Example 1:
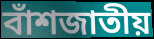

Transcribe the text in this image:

বাঁশজাতীয়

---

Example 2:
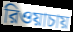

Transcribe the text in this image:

রিওয়াচায়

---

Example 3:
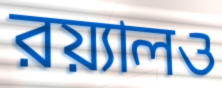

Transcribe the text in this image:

রয়্যালও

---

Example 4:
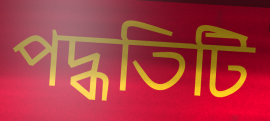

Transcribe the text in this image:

পদ্ধতিটি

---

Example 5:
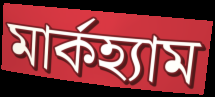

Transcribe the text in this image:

মার্কহ্যাম